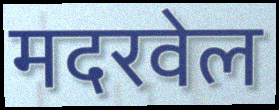
मदरवेल